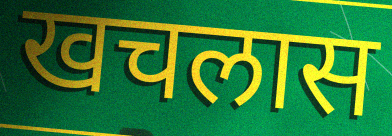
खचलास